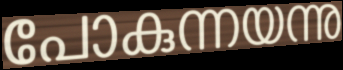
പോകുന്നയന്നു